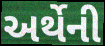
અર્થેની